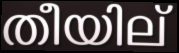
തീയില്